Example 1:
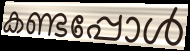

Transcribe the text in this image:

കണ്ടപ്പോൾ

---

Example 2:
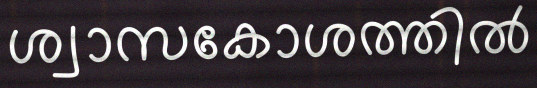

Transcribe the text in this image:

ശ്വാസകോശത്തിൽ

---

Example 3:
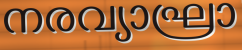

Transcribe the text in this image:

നരവ്യാഘ്രാ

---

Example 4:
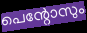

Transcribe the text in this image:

പെന്റോസും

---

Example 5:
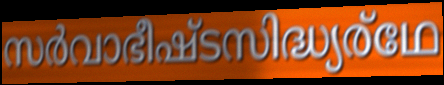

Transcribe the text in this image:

സർവാഭീഷ്ടസിദ്ധ്യര്ഥേ